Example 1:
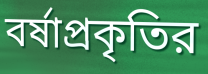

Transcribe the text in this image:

বর্ষাপ্রকৃতির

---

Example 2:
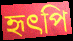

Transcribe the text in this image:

হৃৎপি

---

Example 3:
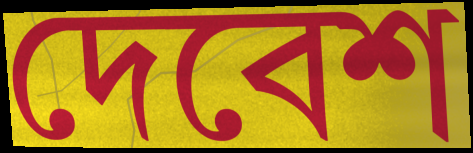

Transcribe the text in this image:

দেবেশ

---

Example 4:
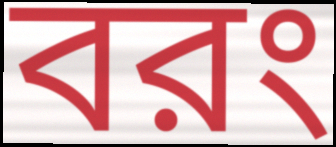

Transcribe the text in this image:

বরং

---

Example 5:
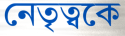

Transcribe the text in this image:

নেতৃত্বকে